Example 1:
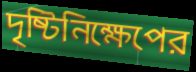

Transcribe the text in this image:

দৃষ্টিনিক্ষেপের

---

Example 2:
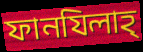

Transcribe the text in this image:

ফানযিলাহ্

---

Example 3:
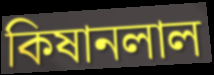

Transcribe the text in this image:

কিষানলাল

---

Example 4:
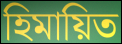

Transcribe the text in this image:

হিমায়িত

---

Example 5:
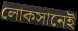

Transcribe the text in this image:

লোকসানেই